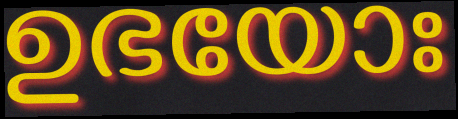
ഉഭയോഃ